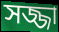
সজ্জা